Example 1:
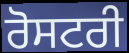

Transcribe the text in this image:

ਰੋਸਟਰੀ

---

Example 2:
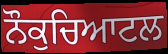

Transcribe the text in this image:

ਨੌਕੁਚਿਆਟਲ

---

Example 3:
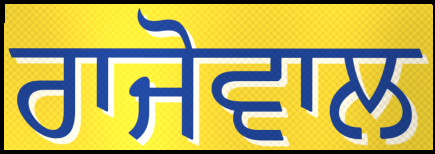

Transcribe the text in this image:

ਰਾਜੋਵਾਲ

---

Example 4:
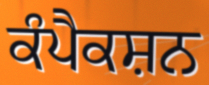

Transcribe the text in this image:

ਕੰਪੈਕਸ਼ਨ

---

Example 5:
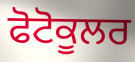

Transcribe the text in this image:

ਫੋਟੋਕੂਲਰ